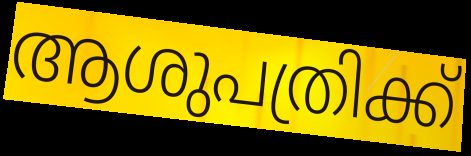
ആശുപത്രിക്ക്